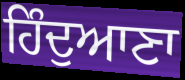
ਹਿੰਦੁਆਣਾ